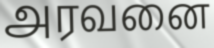
அரவனை